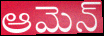
ఆమెన్